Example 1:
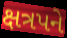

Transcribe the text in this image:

ક્ષત્રપને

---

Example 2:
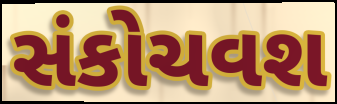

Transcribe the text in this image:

સંકોચવશ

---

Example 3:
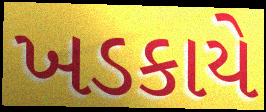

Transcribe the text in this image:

ખડકાયે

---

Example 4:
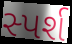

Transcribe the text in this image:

સ્પર્શ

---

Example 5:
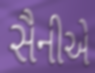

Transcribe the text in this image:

સૈનીએ